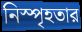
নিস্পৃহতার